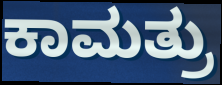
ಕಾಮತ್ರು